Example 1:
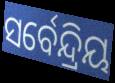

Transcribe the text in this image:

ସର୍ବେନ୍ଦ୍ରିୟ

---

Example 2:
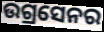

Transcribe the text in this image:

ଉଗ୍ରସେନର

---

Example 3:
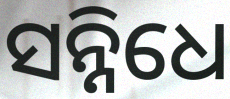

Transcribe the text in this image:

ସନ୍ନିଧେ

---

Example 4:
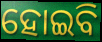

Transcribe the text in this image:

ହୋଇବି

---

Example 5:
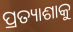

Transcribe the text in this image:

ପ୍ରତ୍ୟାଶାକୁ